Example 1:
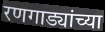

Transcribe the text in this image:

रणगाड्यांच्या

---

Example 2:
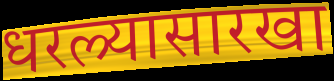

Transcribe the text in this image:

धरल्यासारखा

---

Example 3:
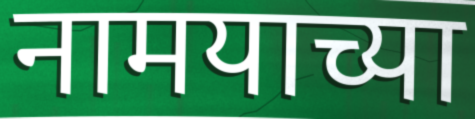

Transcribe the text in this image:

नामयाच्या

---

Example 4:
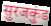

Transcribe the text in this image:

सुरजकुंड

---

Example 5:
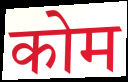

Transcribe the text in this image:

कोम